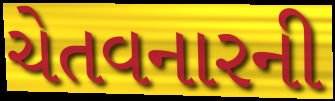
ચેતવનારની